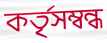
কর্তৃসম্বন্ধ